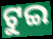
ଟୁଇ